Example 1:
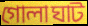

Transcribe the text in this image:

গোলাঘাট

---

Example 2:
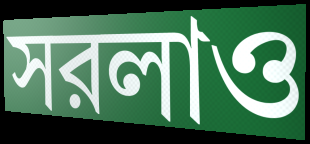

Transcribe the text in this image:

সরলাও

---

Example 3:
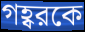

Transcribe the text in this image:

গহ্বরকে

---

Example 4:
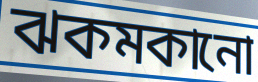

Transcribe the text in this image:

ঝকমকানো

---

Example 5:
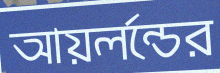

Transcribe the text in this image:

আয়র্লন্ডের